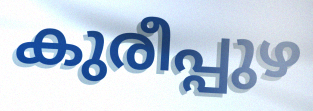
കുരീപ്പുഴ